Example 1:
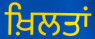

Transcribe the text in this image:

ਖ਼ਿਲਤਾਂ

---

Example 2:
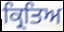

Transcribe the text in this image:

ਕ੍ਰਿਤਿਅ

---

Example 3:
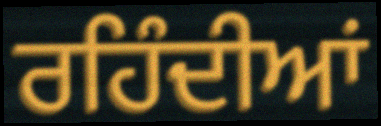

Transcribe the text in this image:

ਰਹਿੰਦੀਆਂ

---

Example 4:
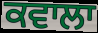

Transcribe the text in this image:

ਕਵਾਲਾ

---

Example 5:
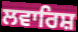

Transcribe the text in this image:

ਲਵਾਰਿਸ਼